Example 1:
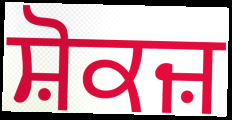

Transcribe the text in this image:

ਸ਼ੋਕਜ਼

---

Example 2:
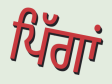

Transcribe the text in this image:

ਪਿੱਗਾਂ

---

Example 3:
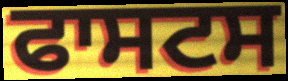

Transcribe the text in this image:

ਫਾਸਟਸ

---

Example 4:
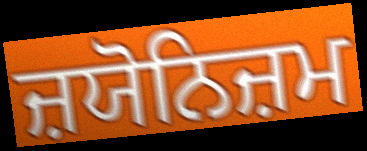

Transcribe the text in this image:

ਜ਼ਯੋਨਿਜ਼ਮ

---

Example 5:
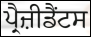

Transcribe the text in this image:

ਪ੍ਰੈਜ਼ੀਡੈਂਟਸ